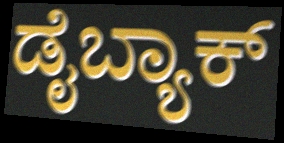
ಡೈಬ್ಯಾಕ್